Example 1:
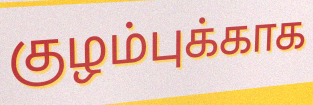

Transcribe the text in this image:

குழம்புக்காக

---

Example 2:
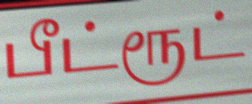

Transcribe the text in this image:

பீட்ரூட்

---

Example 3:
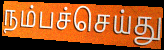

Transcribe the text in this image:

நம்பச்செய்து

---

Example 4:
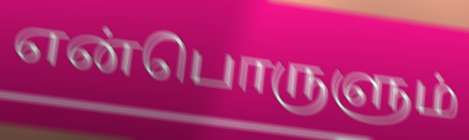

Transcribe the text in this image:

என்பொருளும்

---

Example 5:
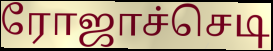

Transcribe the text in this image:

ரோஜாச்செடி